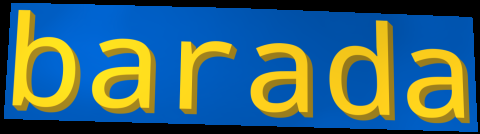
barada